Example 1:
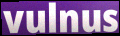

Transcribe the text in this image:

vulnus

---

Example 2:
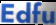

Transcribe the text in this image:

Edfu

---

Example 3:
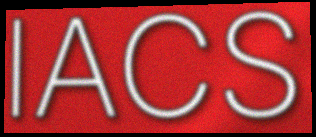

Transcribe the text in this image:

IACS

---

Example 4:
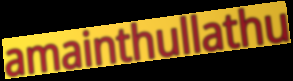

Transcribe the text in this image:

amainthullathu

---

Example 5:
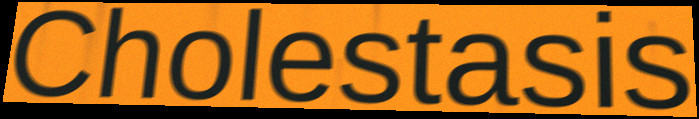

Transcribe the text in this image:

Cholestasis